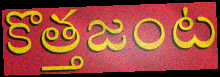
కొత్తజంట